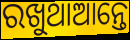
ରଖୁଥାଆନ୍ତେ